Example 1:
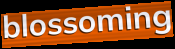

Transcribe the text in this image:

blossoming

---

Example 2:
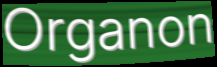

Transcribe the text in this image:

Organon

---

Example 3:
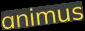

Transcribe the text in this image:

animus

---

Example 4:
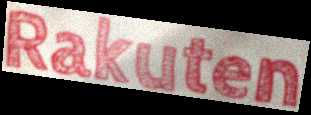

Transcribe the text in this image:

Rakuten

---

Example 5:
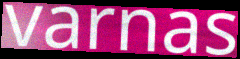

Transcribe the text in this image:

varnas